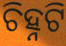
ଚିହ୍ନଟି